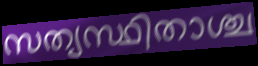
സത്യസ്ഥിതാശ്ച